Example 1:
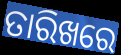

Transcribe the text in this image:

ତାରିଖରେ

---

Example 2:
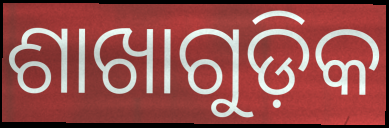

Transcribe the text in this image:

ଶାଖାଗୁଡ଼ିକ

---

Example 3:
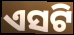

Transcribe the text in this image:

ଏସଟି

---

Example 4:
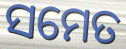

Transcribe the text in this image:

ସମେତ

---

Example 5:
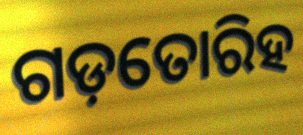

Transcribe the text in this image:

ଗଡ଼ତୋରିହ